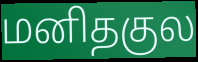
மனிதகுல